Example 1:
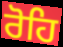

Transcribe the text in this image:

ਰੋਹਿ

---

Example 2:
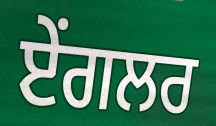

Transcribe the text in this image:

ਏਂਗਲਰ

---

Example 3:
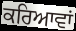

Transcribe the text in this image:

ਕਰਿਆਵਾਂ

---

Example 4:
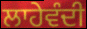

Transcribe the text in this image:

ਲਾਹੇਵੰਦੀ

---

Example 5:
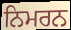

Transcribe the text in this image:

ਨਿਮਰਨ